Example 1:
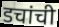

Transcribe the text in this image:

डचांची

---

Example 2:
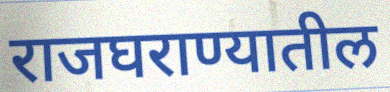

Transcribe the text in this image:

राजघराण्यातील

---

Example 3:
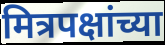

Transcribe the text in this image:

मित्रपक्षांच्या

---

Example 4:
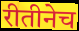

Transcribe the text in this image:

रीतीनेच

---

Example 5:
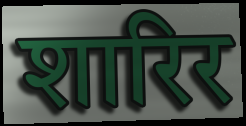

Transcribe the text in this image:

शारिर